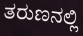
ತರುಣನಲ್ಲಿ